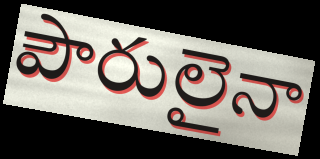
పౌరులైనా